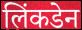
लिंकडेन